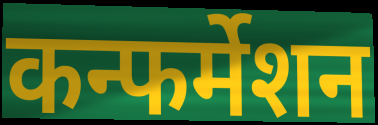
कन्फर्मेशन